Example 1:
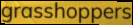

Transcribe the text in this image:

grasshoppers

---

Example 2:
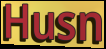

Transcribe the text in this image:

Husn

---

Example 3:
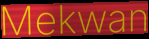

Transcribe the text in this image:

Mekwan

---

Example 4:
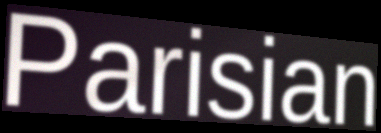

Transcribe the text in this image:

Parisian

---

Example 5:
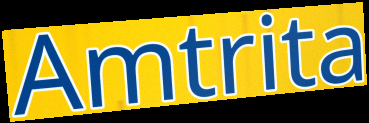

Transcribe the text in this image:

Amtrita